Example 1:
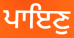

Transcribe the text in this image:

ਪਾਇਣੁ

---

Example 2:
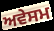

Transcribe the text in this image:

ਅਵੇਸਮ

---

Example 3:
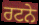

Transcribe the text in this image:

ਰਟਨੇ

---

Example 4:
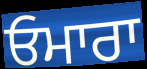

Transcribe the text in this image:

ਓਮਾਰਾ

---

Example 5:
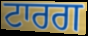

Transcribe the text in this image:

ਟਾਰਗ